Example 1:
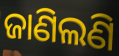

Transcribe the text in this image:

ଜାଣିଲଣି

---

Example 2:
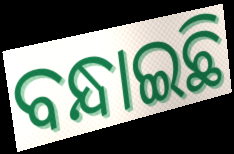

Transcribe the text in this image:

ବନ୍ଧାଇଛି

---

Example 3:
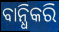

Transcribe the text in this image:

ବାନ୍ଧିକରି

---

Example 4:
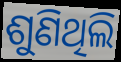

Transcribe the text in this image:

ଶୁଣିଥିଲି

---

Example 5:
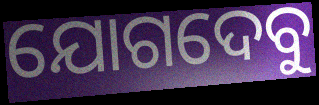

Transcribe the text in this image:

ଯୋଗଦେବୁ